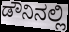
ಡೌನಿನಲ್ಲಿ